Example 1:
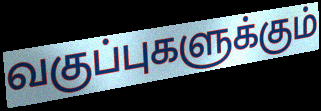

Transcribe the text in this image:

வகுப்புகளுக்கும்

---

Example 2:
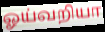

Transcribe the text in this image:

ஓய்வறியா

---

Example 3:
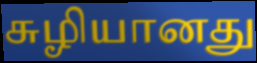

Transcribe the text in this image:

சுழியானது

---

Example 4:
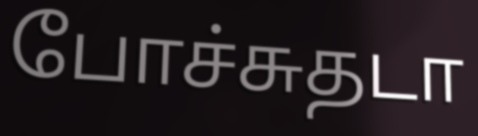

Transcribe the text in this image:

போச்சுதடா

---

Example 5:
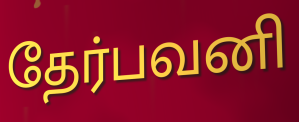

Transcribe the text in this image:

தேர்பவனி